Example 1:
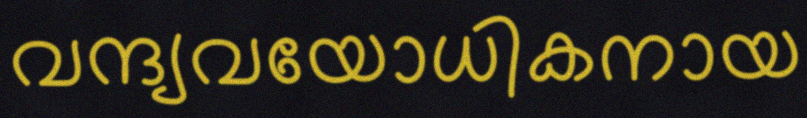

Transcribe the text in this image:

വന്ദ്യവയോധികനായ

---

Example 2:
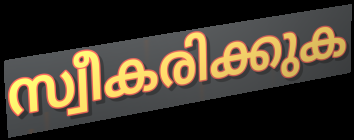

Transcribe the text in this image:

സ്വീകരിക്കുക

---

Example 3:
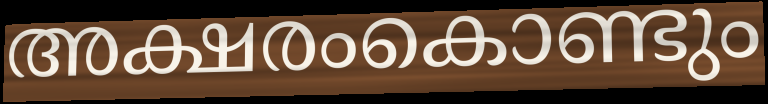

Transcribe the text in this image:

അക്ഷരംകൊണ്ടും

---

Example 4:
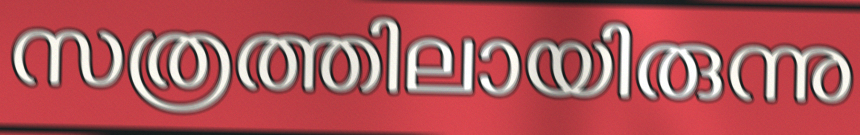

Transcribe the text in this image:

സത്രത്തിലായിരുന്നു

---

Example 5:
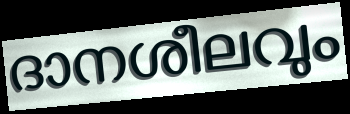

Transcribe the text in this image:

ദാനശീലവും